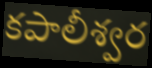
కపాలీశ్వర